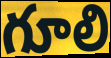
గూలి